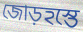
জোড়হস্তে